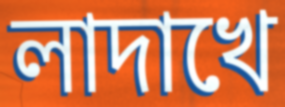
লাদাখে